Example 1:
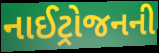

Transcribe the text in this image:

નાઈટ્રોજનની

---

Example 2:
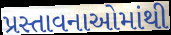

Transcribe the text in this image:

પ્રસ્તાવનાઓમાંથી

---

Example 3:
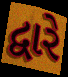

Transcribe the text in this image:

દ્વારે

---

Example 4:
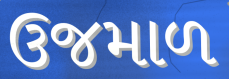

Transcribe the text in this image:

ઉજમાળ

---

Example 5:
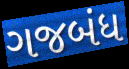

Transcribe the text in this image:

ગજબંધ